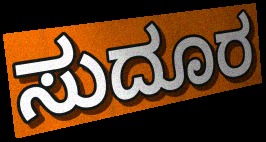
ಸುದೂರ